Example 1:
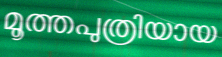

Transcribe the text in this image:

മൂത്തപുത്രിയായ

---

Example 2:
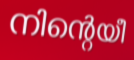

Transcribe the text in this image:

നിന്റെയീ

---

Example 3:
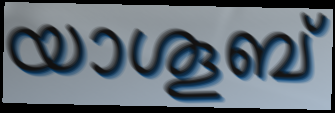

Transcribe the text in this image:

യാശൂബ്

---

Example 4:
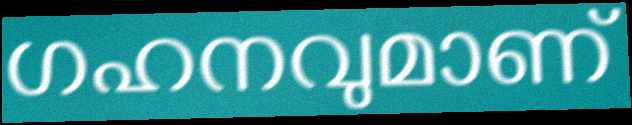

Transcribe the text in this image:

ഗഹനവുമാണ്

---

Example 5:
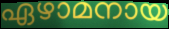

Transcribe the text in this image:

ഏഴാമനായ